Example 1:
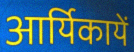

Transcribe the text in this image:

आर्यिकायें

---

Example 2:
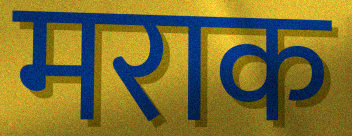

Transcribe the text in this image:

मराक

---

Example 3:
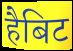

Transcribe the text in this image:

हैबिट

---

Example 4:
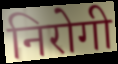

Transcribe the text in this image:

निरोगी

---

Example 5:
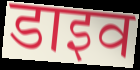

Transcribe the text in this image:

डाइव